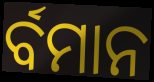
ର୍ବମାନ